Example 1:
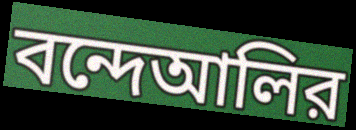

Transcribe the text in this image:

বন্দেআলির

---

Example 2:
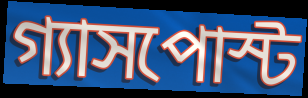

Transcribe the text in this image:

গ্যাসপোস্ট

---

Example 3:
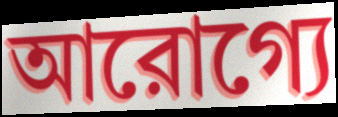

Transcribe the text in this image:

আরোগ্যে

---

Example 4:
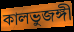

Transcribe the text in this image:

কালভুজঙ্গী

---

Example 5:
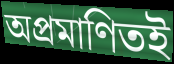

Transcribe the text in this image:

অপ্রমাণিতই